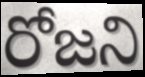
రోజని